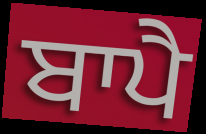
ਬਾਪੈ